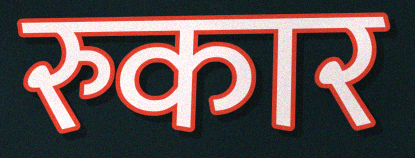
रुकार